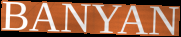
BANYAN